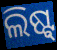
ଲିଷ୍ଟ୍